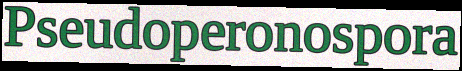
Pseudoperonospora